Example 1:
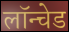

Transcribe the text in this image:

लॉन्चेड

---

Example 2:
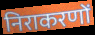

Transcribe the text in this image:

निराकरणों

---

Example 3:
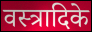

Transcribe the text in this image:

वस्त्रादिके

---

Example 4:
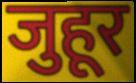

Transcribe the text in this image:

जुहूर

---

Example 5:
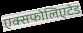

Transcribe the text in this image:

एक्सफोलिएटेड